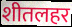
शीतलहर